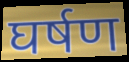
घर्षण